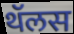
थॅलस